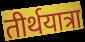
तीर्थयात्रा